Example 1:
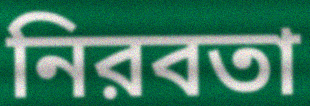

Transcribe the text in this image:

নিরবতা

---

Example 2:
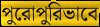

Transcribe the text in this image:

পুরোপুরিভাবে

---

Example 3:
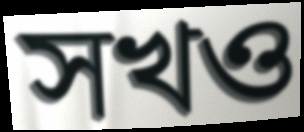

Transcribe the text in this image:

সখও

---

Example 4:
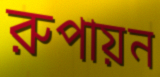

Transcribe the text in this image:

রুপায়ন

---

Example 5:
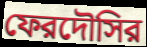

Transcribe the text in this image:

ফেরদৌসির